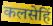
कलसेहिं